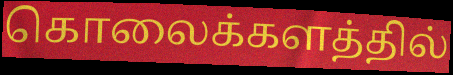
கொலைக்களத்தில்